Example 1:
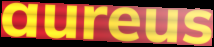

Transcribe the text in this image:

aureus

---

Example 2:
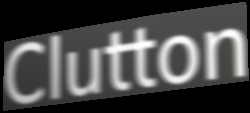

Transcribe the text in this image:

Clutton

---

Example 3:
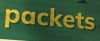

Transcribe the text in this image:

packets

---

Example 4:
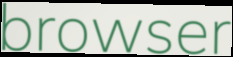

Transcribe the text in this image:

browser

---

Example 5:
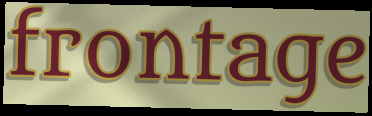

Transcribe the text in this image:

frontage